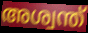
അശ്വന്ത്